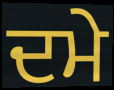
ਦਮੇ